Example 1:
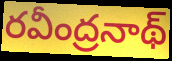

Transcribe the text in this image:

రవీంద్రనాథ్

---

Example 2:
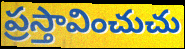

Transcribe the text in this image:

ప్రస్తావించుచు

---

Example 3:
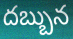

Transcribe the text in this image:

దబ్బున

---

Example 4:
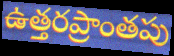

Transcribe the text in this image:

ఉత్తరప్రాంతపు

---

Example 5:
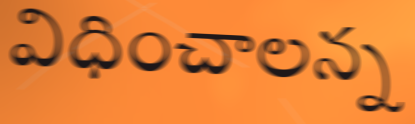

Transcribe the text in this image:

విధించాలన్న